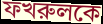
ফখরুলকে